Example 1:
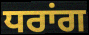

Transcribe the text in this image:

ਧਰਾਂਗ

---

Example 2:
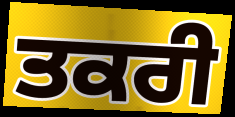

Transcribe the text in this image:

ਤਕਰੀ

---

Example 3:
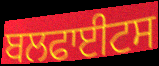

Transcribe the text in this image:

ਬਲਫਾਈਟਸ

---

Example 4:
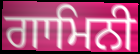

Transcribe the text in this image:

ਗਾਮਿਨੀ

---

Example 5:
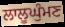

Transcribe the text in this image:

ਲਾਲੂਘੁੰਮਣ